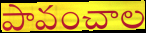
పావంచాల